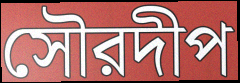
সৌরদীপ